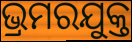
ଭ୍ରମରଯୁକ୍ତ